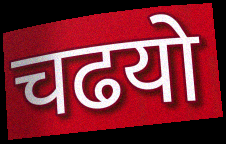
चढयो